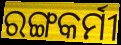
ରଙ୍ଗକର୍ମୀ